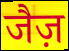
जैज़